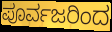
ಪೂರ್ವಜರಿಂದ